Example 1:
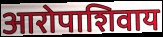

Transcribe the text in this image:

आरोपाशिवाय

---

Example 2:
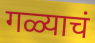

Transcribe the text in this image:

गळ्याचं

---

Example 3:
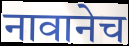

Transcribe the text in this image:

नावानेच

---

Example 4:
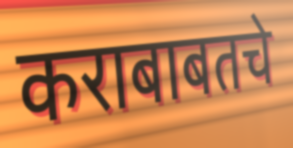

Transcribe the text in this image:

कराबाबतचे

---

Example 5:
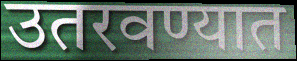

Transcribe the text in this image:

उतरवण्यात